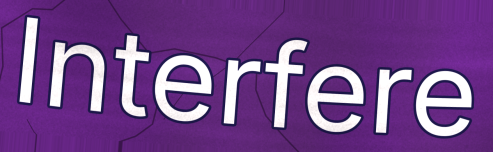
Interfere